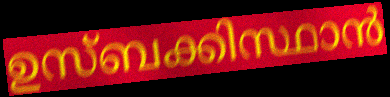
ഉസ്ബക്കിസ്ഥാൻ